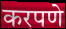
करपणे